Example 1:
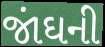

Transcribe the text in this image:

જાંઘની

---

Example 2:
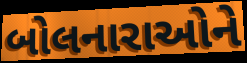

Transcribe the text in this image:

બોલનારાઓને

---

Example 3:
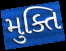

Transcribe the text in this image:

મુક્તિ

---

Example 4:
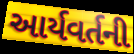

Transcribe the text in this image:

આર્યવર્તની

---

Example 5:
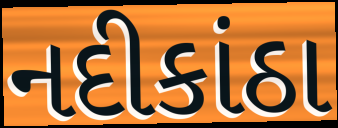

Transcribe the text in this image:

નદીકાંઠા